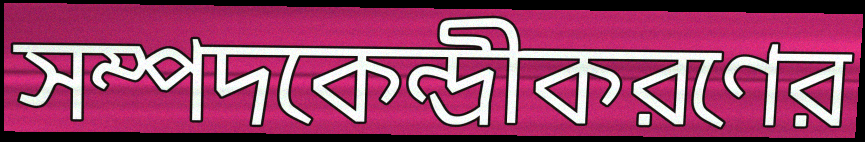
সম্পদকেন্দ্রীকরণের